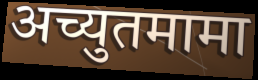
अच्युतमामा